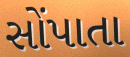
સોંપાતા